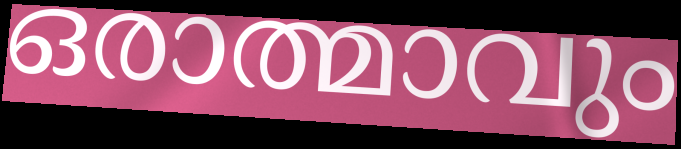
ഒരാത്മാവും